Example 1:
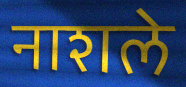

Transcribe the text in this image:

नाशले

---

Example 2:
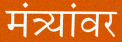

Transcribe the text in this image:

मंत्र्यांवर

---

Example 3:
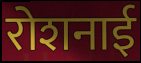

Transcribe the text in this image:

रोशनाई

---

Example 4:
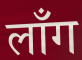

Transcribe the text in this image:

लाँग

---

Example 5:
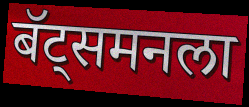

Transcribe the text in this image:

बॅट्समनला